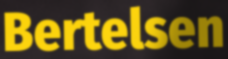
Bertelsen